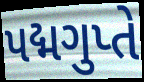
પદ્મગુપ્તે